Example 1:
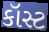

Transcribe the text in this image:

કૉસ્ટ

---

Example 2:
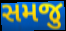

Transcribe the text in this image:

સમજુ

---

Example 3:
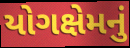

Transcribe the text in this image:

યોગક્ષેમનું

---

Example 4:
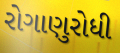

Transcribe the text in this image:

રોગાણુરોધી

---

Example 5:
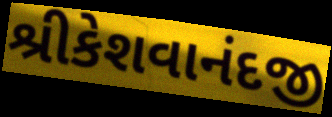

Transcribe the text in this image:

શ્રીકેશવાનંદજી